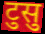
टुसु